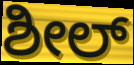
ಶೀಲ್